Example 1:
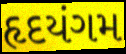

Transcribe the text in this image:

હૃદયંગમ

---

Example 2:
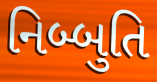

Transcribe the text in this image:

નિબ્બુતિ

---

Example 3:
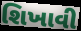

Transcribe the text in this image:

શિખાવી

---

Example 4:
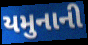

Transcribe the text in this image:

યમુનાની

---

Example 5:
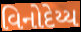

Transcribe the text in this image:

વિનોદેય્ય